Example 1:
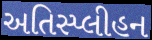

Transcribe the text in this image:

અતિસ્પ્લીહન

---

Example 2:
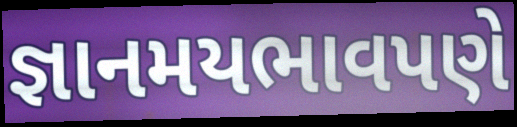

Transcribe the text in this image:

જ્ઞાનમયભાવપણે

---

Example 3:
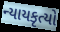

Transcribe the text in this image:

ન્યાયકૃત્યો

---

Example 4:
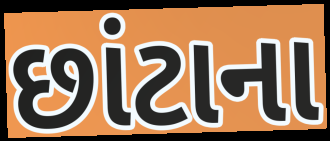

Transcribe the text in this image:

છાંટાના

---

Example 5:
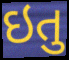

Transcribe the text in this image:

ઇતુ